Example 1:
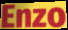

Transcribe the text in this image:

Enzo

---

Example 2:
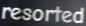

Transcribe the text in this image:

resorted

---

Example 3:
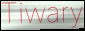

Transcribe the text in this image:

Tiwary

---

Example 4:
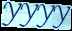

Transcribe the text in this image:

YYYY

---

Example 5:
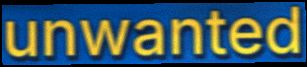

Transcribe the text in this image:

unwanted